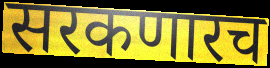
सरकणारच